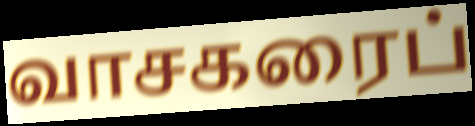
வாசகரைப்